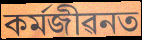
কৰ্মজীৱনত